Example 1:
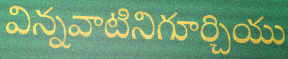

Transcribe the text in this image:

విన్నవాటినిగూర్చియు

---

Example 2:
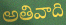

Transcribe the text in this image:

అతివాది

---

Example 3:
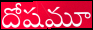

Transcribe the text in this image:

దోషమూ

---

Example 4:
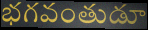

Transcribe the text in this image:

భగవంతుడూ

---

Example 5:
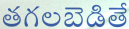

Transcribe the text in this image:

తగలబెడితే